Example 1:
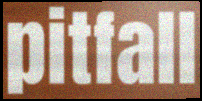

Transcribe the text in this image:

pitfall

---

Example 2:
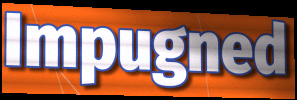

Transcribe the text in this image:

Impugned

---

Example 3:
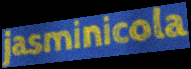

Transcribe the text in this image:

jasminicola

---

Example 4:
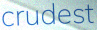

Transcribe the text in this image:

crudest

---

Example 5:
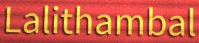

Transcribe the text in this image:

Lalithambal